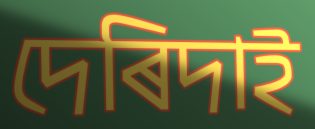
দেৰিদাই